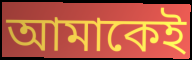
আমাকেই